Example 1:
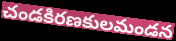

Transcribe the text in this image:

చండకిరణకులమండన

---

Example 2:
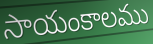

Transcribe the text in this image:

సాయంకాలము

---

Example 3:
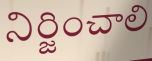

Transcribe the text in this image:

నిర్జించాలి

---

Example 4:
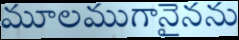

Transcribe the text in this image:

మూలముగానైనను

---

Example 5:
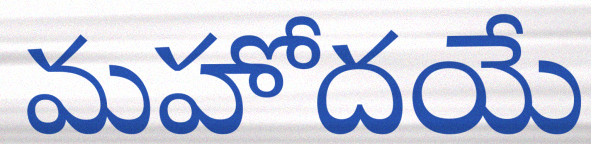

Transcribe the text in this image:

మహోదయే